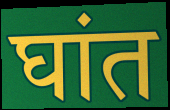
घांत